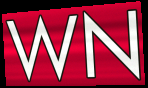
WN